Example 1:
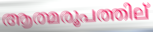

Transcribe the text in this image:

ആത്മരൂപത്തില്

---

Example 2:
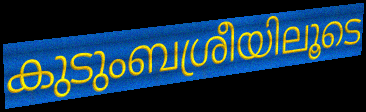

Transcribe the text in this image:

കുടുംബശ്രീയിലൂടെ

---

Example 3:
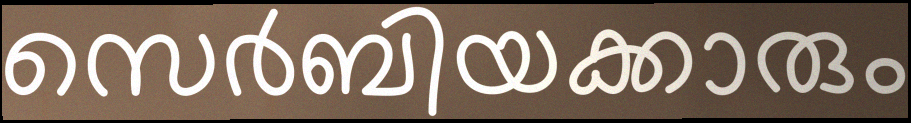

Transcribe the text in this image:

സെർബിയക്കാരും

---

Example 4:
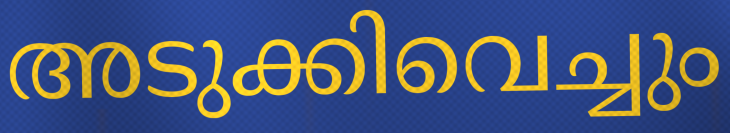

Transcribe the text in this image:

അടുക്കിവെച്ചും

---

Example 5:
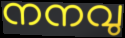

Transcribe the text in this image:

നനവു